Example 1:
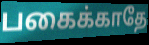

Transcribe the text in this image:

பகைக்காதே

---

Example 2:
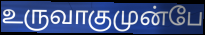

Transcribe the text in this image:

உருவாகுமுன்பே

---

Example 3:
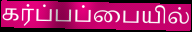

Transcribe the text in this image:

கர்ப்பப்பையில்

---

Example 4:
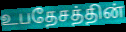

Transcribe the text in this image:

உபதேசத்தின்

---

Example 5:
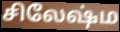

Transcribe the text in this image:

சிலேஷ்ம